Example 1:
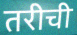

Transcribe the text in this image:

तरीची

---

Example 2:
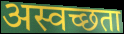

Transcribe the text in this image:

अस्वच्छता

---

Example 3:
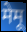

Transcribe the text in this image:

मेमू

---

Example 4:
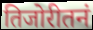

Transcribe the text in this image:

तिजोरीतनं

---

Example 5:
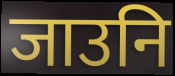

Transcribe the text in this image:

जाउनि